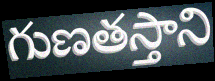
గుణతస్తాని